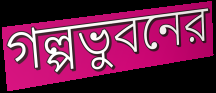
গল্পভুবনের